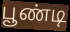
பூண்டி